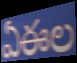
ఏఈల